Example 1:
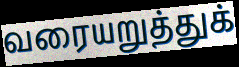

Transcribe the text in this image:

வரையறுத்துக்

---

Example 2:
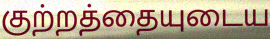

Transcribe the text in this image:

குற்றத்தையுடைய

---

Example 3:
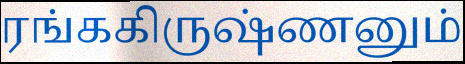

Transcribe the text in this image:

ரங்ககிருஷ்ணனும்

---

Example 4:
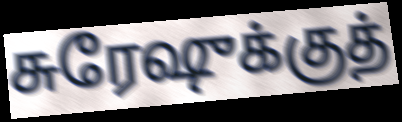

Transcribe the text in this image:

சுரேஷுக்குத்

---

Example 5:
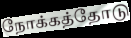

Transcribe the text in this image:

நோக்கத்தோடு